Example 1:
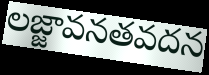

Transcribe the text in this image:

లజ్జావనతవదన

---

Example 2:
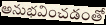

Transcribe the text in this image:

అనుభవించడంతో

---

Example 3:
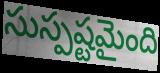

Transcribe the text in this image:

సుస్పష్టమైంది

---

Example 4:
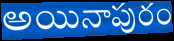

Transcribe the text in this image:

అయినాపురం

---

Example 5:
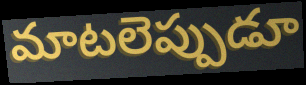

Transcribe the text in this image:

మాటలెప్పుడూ